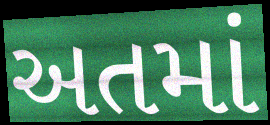
અતમાં